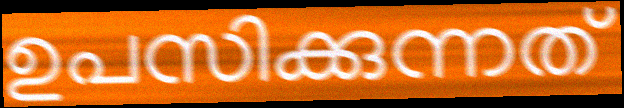
ഉപസിക്കുന്നത്